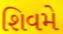
શિવમે